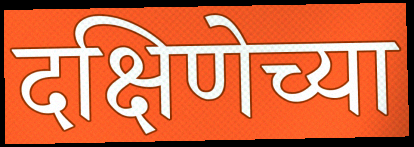
दक्षिणेच्या